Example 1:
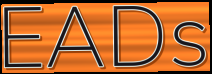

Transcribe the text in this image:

EADs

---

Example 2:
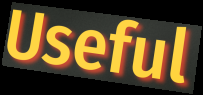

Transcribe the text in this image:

Useful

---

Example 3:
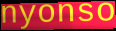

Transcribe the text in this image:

nyonso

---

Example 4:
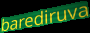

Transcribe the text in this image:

barediruva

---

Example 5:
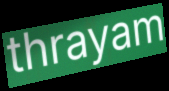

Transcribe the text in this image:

thrayam